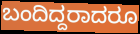
ಬಂದಿದ್ದರಾದರೂ